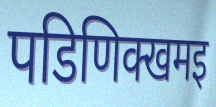
पडिणिक्खमइ